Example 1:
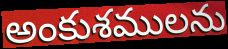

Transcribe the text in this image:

అంకుశములను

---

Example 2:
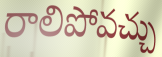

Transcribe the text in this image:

రాలిపోవచ్చు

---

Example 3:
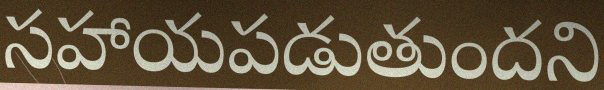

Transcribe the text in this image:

సహాయపడుతుందని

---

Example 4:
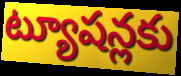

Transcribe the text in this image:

ట్యూషన్లకు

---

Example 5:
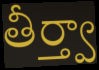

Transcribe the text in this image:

తీర్త్వా